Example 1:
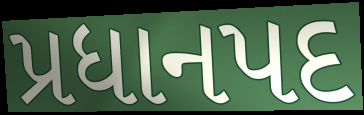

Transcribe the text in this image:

પ્રધાનપદ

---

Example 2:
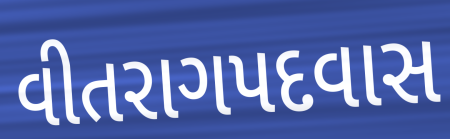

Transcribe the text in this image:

વીતરાગપદવાસ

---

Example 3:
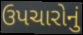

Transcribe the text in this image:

ઉપચારોનું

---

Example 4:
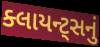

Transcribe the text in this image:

ક્લાયન્ટ્સનું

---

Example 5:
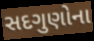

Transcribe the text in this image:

સદગુણોના